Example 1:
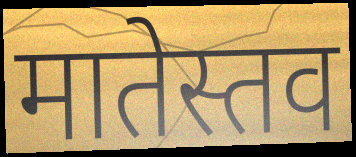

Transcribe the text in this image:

मातेस्तव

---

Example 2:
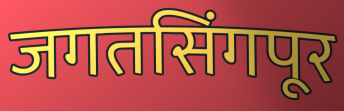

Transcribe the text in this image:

जगतसिंगपूर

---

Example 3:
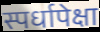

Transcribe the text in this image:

स्पर्धापेक्षा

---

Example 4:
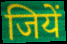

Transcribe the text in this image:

जियें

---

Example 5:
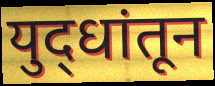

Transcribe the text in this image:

युद्धांतून